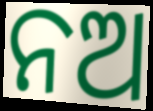
ନଅ